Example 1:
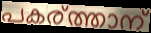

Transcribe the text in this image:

പകര്ത്താന്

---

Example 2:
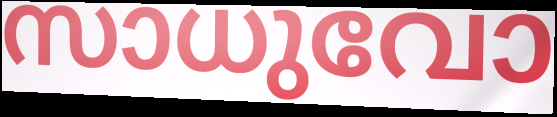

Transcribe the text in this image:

സാധുവോ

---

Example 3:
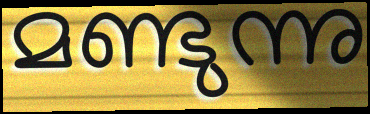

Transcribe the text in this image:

മണ്ടുന്നു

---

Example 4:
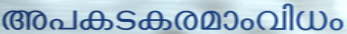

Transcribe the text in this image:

അപകടകരമാംവിധം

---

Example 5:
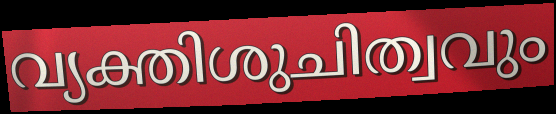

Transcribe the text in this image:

വ്യക്തിശുചിത്വവും